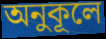
অনুকূলে